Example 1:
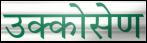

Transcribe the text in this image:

उक्कोसेण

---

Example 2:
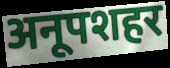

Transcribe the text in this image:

अनूपशहर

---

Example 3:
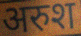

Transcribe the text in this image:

अरुश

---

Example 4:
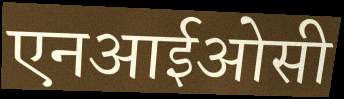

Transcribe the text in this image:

एनआईओसी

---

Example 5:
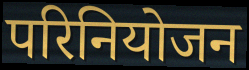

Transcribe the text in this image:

परिनियोजन